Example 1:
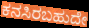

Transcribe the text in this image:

ಕನಸಿರಬಹುದೇ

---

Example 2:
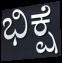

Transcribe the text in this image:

ಭಿಕ್ಷೆ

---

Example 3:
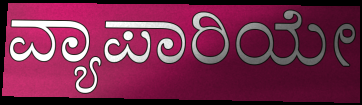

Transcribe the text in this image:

ವ್ಯಾಪಾರಿಯೇ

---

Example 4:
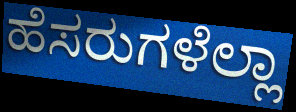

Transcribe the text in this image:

ಹೆಸರುಗಳೆಲ್ಲಾ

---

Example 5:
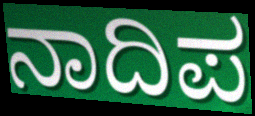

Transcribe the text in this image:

ನಾದಿಪ